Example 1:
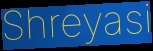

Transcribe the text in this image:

Shreyasi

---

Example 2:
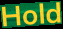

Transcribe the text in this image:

Hold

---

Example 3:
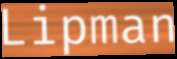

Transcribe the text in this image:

Lipman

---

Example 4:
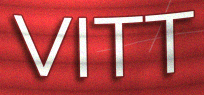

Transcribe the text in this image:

VITT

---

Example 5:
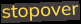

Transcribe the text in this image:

stopover